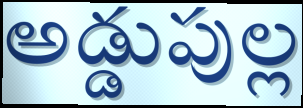
అడ్డుపుల్ల